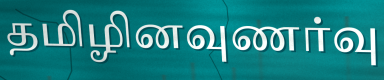
தமிழினவுணர்வு